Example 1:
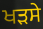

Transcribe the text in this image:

ਖੜਸੇ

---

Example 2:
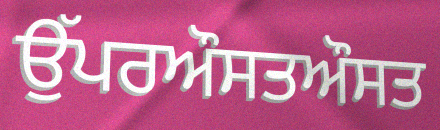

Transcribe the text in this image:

ਉੱਪਰਔਸਤਔਸਤ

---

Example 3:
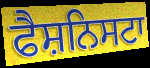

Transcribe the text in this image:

ਫੈਸ਼ਨਿਸਟਾ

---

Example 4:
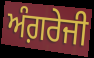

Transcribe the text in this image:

ਅੰਗ਼ਰੇਜੀ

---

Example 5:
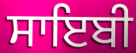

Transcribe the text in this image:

ਸਾਇਬੀ